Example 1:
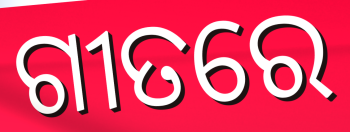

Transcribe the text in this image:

ଗୀତରେ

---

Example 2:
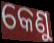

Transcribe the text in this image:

କେଣୁ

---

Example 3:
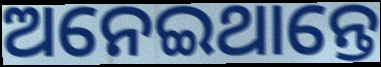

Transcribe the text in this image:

ଅନେଇଥାନ୍ତେ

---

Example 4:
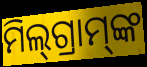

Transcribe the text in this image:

ମିଲ୍‌ଗ୍ରାମ୍‌ଙ୍କ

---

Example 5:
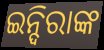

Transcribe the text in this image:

ଇନ୍ଦିରାଙ୍କ